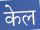
केल